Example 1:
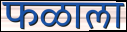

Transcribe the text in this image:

फळाला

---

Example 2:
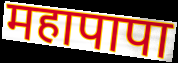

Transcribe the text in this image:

महापापा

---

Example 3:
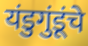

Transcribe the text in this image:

यंडुगुंडूंचे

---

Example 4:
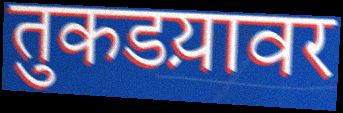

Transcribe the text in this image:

तुकडय़ावर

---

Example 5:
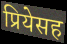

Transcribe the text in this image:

प्रियेसह